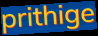
prithige